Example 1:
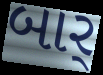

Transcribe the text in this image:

બાર્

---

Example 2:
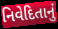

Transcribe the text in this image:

નિવેદિતાનું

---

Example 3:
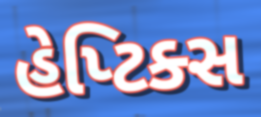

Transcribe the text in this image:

હેપ્ટિક્સ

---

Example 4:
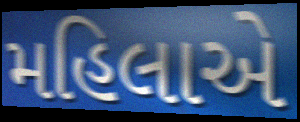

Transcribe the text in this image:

મહિલાએ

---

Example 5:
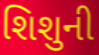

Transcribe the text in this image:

શિશુની